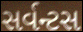
સર્વન્ટસ